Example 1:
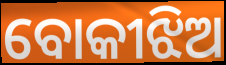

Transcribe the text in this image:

ବୋକୀଝିଅ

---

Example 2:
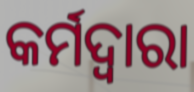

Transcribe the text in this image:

କର୍ମଦ୍ବାରା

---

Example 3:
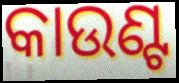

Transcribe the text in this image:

କାଉଣ୍ଟ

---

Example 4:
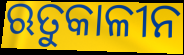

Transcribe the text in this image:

ଋତୁକାଳୀନ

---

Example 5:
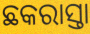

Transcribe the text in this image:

ଛକରାସ୍ତା